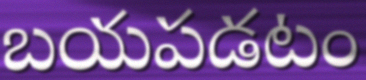
బయపడటం